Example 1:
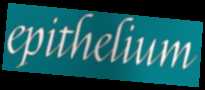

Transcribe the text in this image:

epithelium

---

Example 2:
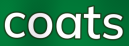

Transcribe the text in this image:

coats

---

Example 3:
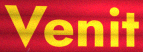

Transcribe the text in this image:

Venit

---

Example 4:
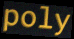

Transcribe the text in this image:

poly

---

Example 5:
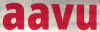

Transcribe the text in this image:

aavu